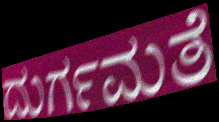
ದುರ್ಗಮತೆ